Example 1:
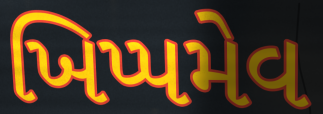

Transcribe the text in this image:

ખિપ્પમેવ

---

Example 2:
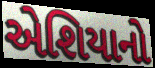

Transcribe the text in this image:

એશિયાનો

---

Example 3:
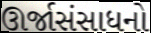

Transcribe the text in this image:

ઊર્જાસંસાધનો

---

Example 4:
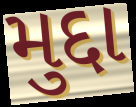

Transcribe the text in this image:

મુદ્દા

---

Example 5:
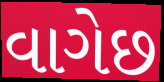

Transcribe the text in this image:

વાગેછ